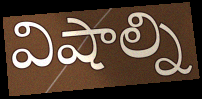
విషాల్ని